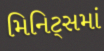
મિનિટ્સમાં